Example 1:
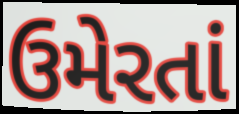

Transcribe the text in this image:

ઉમેરતાં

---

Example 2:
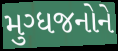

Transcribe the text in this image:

મુગ્ધજનોને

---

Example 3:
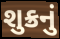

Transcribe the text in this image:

શુક્રનું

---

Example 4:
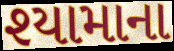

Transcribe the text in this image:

શ્યામાના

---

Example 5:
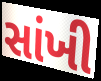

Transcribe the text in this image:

સાંખી